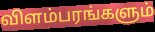
விளம்பரங்களும்